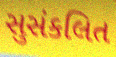
સુસંકલિત